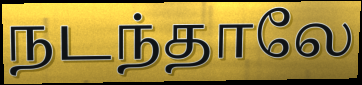
நடந்தாலே